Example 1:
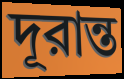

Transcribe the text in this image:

দূরান্ত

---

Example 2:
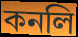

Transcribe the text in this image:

কনলি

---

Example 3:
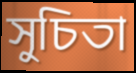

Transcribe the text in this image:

সুচিতা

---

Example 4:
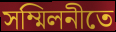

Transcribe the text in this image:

সম্মিলনীতে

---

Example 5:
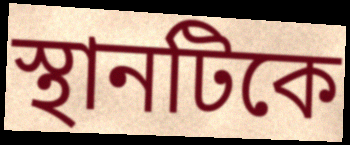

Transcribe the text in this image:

স্থানটিকে